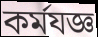
কর্মযজ্ঞ